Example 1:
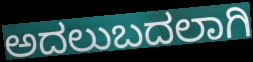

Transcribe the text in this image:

ಅದಲುಬದಲಾಗಿ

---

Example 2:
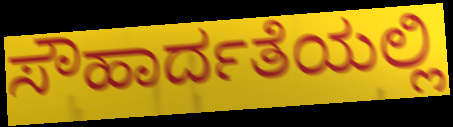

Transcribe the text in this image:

ಸೌಹಾರ್ದತೆಯಲ್ಲಿ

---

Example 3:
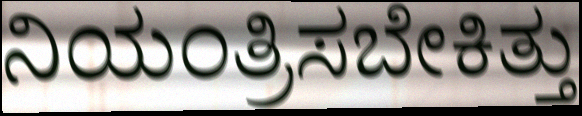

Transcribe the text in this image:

ನಿಯಂತ್ರಿಸಬೇಕಿತ್ತು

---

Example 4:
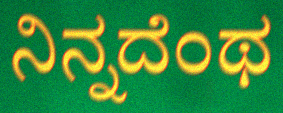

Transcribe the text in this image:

ನಿನ್ನದೆಂಥ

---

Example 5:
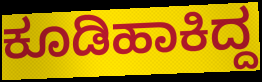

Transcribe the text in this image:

ಕೂಡಿಹಾಕಿದ್ದ